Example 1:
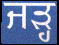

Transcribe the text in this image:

ਜੜ੍ਹ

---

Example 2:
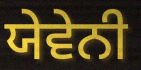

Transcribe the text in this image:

ਯੇਵੇਨੀ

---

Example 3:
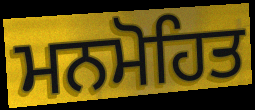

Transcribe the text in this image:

ਮਨਮੋਹਿਤ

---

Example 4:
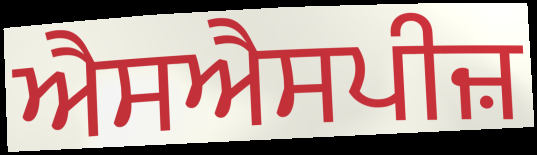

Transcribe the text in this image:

ਐਸਐਸਪੀਜ਼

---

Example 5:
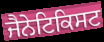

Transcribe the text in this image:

ਜੈਨੇਟਿਕਿਸਟ